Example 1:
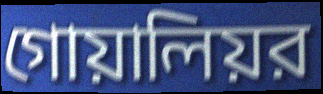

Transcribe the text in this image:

গোয়ালিয়র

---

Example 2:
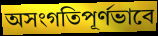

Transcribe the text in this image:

অসংগতিপূর্ণভাবে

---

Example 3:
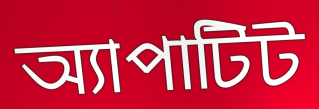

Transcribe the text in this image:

অ্যাপাটিট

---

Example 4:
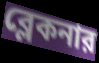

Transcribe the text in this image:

ব্লেকনার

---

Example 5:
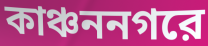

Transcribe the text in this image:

কাঞ্চননগরে